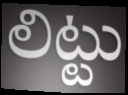
లిట్టు